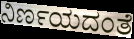
ನಿರ್ಣಯದಂತೆ